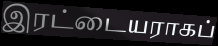
இரட்டையராகப்